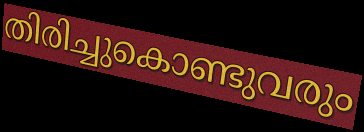
തിരിച്ചുകൊണ്ടുവരും